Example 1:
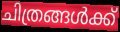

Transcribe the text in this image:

ചിത്രങ്ങൾക്ക്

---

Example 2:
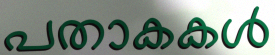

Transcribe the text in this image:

പതാകകൾ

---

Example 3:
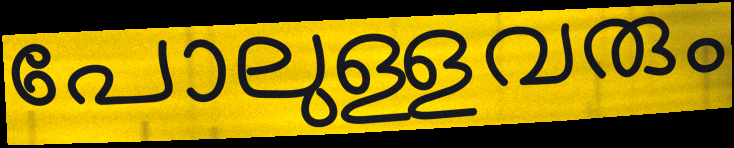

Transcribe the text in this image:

പോലുള്ളവരും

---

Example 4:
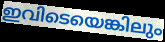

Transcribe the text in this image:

ഇവിടെയെങ്കിലും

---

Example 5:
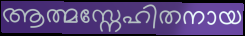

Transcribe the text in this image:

ആത്മസ്നേഹിതനായ